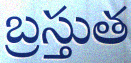
బ్రస్తుత